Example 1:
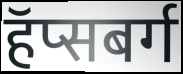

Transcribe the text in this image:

हॅप्सबर्ग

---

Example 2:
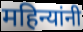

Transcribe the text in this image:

महिन्यांनी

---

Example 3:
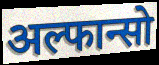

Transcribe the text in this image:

अल्फान्सो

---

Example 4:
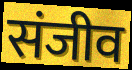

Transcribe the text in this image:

संजीव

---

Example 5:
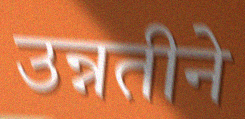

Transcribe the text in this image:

उन्नतीने